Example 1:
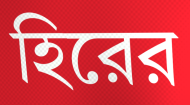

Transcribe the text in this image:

হিরের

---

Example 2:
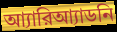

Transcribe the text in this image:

আ্যারিআ্যাডনি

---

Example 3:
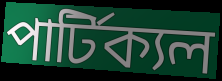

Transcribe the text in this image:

পার্টিক্যল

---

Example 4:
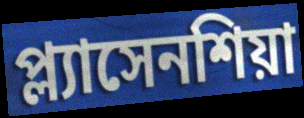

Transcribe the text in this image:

প্ল্যাসেনশিয়া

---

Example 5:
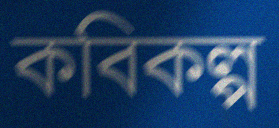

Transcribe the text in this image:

কবিকল্প